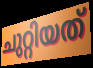
ചുറ്റിയത്